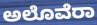
ಅಲೊವೆರಾ